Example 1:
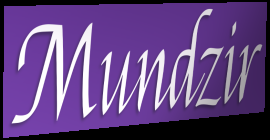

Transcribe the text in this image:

Mundzir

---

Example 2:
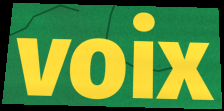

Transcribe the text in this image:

voix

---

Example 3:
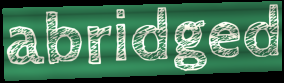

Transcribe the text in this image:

abridged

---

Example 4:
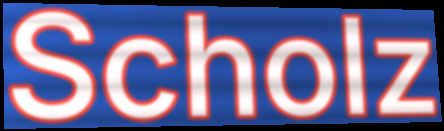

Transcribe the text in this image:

Scholz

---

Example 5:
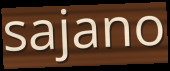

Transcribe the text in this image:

sajano